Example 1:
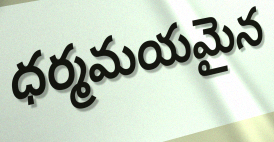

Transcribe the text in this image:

ధర్మమయమైన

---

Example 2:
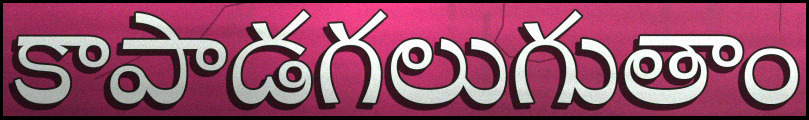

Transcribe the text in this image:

కాపాడగలుగుతాం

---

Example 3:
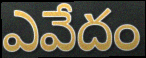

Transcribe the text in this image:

ఎవేదం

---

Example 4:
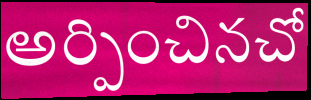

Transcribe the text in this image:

అర్పించినచో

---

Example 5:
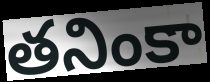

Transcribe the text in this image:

తనింకా